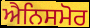
ਐਨਿਸਮੋਰ